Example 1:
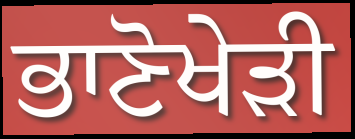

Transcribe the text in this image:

ਭਾਣੋਖੇੜੀ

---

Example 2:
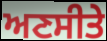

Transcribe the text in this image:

ਅਣਸੀਤੇ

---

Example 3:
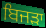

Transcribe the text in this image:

ਬਿਜੜਾ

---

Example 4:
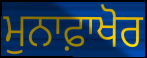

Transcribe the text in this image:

ਮੁਨਾਫ਼ਾਖੋਰ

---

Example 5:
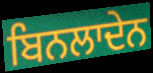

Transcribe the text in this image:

ਬਿਨਲਾਦੇਨ